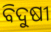
ବିଦୁଷୀ